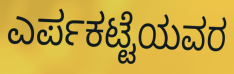
ಎರ್ಪಕಟ್ಟೆಯವರ